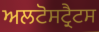
ਅਲਟੋਸਟ੍ਰੈਟਸ